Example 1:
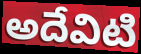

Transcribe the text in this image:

అదేవిటి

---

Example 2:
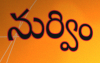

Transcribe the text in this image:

నుర్విం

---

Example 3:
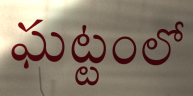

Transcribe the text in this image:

ఘట్టంలో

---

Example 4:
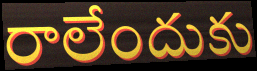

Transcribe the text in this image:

రాలేందుకు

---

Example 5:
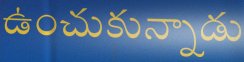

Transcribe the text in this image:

ఉంచుకున్నాడు